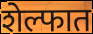
शेल्फात